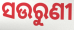
ସଉରୁଣୀ